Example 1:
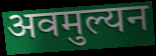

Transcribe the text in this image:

अवमुल्यन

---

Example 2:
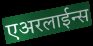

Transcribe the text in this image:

एअरलाईन्स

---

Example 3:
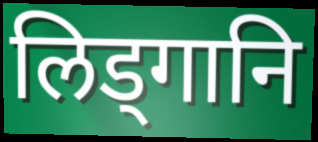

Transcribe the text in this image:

लिड्गानि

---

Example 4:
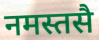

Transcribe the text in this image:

नमस्तसै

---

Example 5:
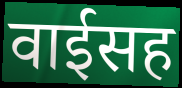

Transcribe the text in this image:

वाईसह